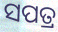
ସପତ୍ର